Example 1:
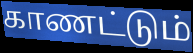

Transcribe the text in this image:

காணட்டும்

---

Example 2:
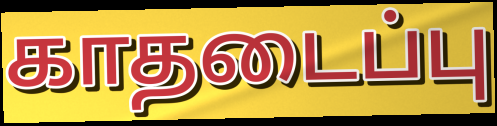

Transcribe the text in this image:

காதடைப்பு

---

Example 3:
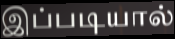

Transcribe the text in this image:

இப்படியால்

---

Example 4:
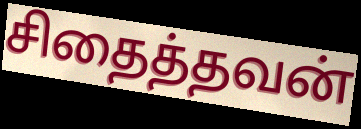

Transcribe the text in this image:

சிதைத்தவன்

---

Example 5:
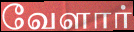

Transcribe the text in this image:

வேளார்